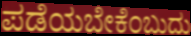
ಪಡೆಯಬೇಕೆಂಬುದು